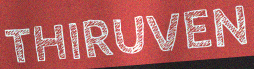
THIRUVEN